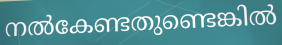
നൽകേണ്ടതുണ്ടെങ്കിൽ